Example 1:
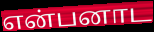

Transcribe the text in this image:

என்பனாட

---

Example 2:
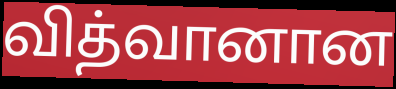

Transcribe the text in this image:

வித்வானான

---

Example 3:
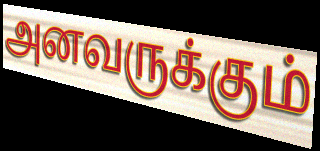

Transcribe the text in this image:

அனவருக்கும்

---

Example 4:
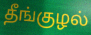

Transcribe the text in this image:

தீங்குழல்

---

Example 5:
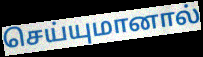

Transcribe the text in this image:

செய்யுமானால்